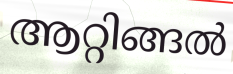
ആറ്റിങ്ങൽ